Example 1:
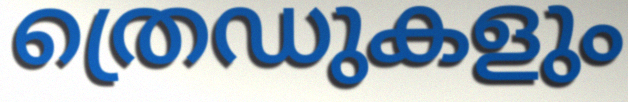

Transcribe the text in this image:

ത്രെഡുകളും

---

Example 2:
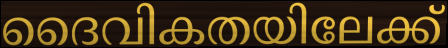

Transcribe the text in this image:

ദൈവികതയിലേക്ക്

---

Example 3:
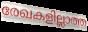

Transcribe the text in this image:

രേഖകളില്ലാത്ത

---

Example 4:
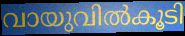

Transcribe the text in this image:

വായുവിൽകൂടി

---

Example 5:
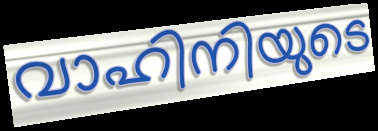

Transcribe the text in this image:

വാഹിനിയുടെ